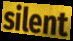
silent